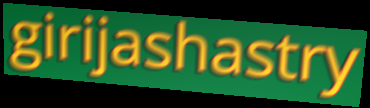
girijashastry